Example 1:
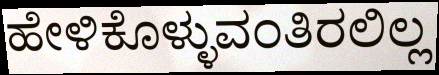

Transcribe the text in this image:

ಹೇಳಿಕೊಳ್ಳುವಂತಿರಲಿಲ್ಲ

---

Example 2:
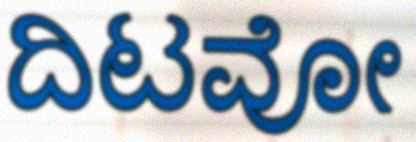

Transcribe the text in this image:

ದಿಟವೋ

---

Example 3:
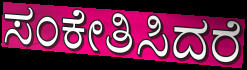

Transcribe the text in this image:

ಸಂಕೇತಿಸಿದರೆ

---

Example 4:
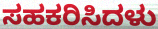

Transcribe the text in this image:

ಸಹಕರಿಸಿದಳು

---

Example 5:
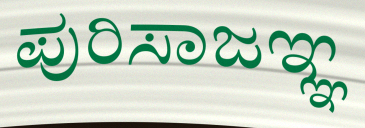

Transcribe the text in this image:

ಪುರಿಸಾಜಞ್ಞ